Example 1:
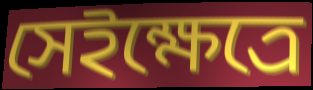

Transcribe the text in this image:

সেইক্ষেত্রে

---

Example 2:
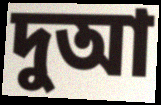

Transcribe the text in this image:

দুআ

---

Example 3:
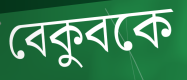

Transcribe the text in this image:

বেকুবকে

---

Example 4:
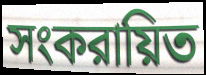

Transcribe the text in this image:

সংকরায়িত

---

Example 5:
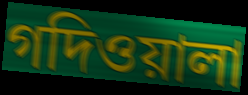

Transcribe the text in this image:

গদিওয়ালা